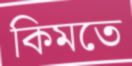
কিমতে